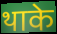
थाके